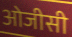
ओजीसी